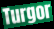
Turgor